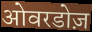
ओवरडोज़